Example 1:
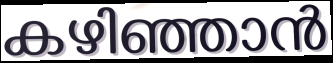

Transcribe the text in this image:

കഴിഞ്ഞാൻ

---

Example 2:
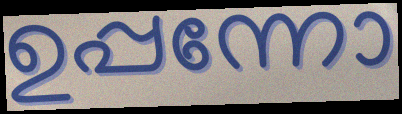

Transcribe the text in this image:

ഉപ്പന്നോ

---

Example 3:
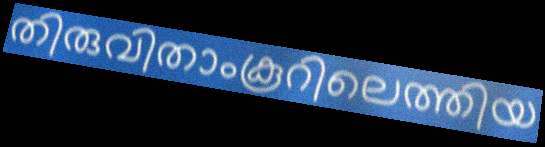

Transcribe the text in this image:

തിരുവിതാംകൂറിലെത്തിയ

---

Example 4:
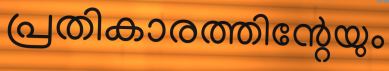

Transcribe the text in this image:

പ്രതികാരത്തിന്റേയും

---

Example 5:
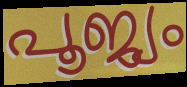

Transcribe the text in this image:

പൂജ്യം